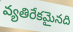
వ్యతిరేకమైనది